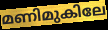
മണിമുകിലേ